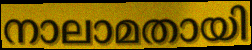
നാലാമതായി